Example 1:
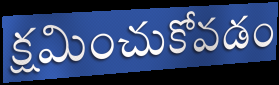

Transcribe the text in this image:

క్షమించుకోవడం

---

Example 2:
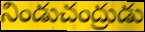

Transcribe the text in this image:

నిండుచంద్రుడు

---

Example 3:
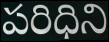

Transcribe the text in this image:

పరిధిని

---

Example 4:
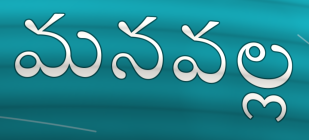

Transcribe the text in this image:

మనవల్ల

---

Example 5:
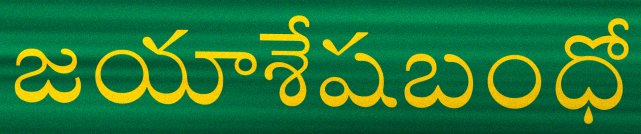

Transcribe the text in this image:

జయాశేషబంధో